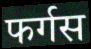
फर्गस